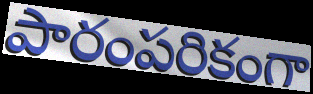
పారంపరికంగా